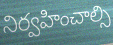
నిర్వహించాల్సి